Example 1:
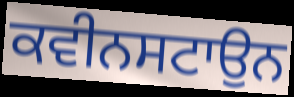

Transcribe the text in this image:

ਕਵੀਨਸਟਾਉਨ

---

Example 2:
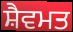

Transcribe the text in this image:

ਸ਼ੈਵਮਤ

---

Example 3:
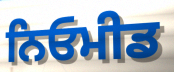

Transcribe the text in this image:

ਨਿਓਮੀਡ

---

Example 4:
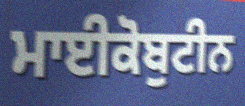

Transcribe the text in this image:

ਮਾਈਕੋਬੁਟੀਨ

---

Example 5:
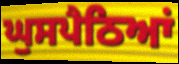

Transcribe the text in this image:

ਘੁਸਪੈਠਿਆਂ